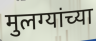
मुलग्यांच्या